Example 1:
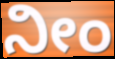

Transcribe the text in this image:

ನೀಂ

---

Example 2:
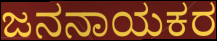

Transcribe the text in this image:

ಜನನಾಯಕರ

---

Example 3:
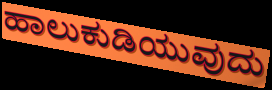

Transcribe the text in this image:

ಹಾಲುಕುಡಿಯುವುದು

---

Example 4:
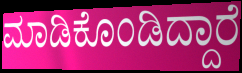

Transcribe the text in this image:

ಮಾಡಿಕೊಂಡಿದ್ದಾರೆ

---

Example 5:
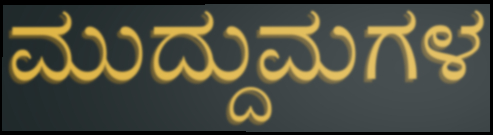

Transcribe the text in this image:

ಮುದ್ದುಮಗಳ